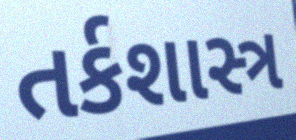
તર્કશાસ્ત્ર